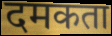
दमकता